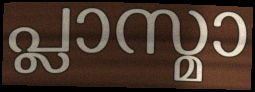
പ്ലാസ്മാ